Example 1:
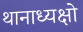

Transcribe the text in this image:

थानाध्यक्षो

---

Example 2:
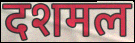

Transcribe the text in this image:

दशमल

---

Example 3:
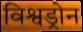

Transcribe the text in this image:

विश्वड्रोन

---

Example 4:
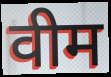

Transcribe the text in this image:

वीम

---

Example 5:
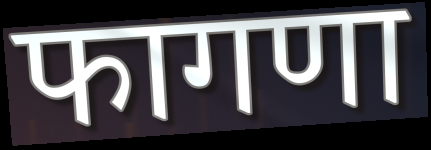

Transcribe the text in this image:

फागणा